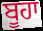
ਬੂਹਾ